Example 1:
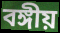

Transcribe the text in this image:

বঙ্গীয়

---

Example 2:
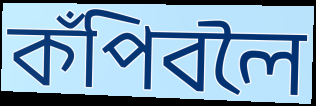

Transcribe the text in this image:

কঁপিবলৈ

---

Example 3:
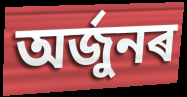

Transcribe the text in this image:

অৰ্জুনৰ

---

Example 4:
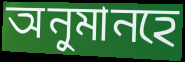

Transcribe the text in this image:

অনুমানহে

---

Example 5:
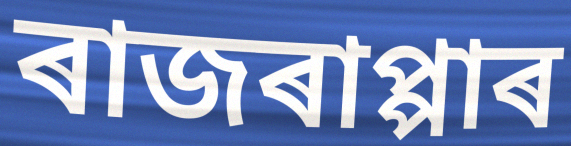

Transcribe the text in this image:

ৰাজৰাপ্পাৰ